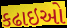
કઢાઇઓ